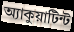
অ্যাকুয়াটিন্ট